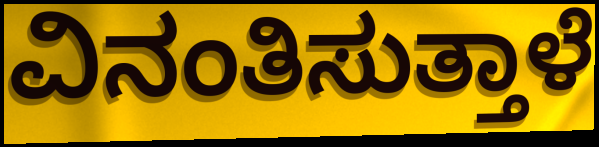
ವಿನಂತಿಸುತ್ತಾಳೆ